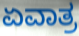
ಏವಾತ್ರ